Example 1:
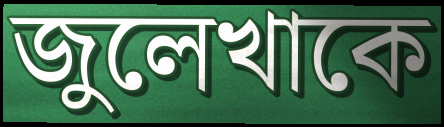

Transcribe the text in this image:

জুলেখাকে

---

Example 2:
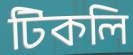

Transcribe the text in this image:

টিকলি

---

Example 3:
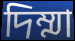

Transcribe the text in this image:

দিম্মা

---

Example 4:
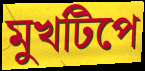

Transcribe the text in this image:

মুখটিপে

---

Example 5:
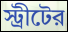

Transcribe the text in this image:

স্ট্রীটের